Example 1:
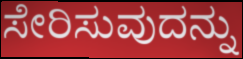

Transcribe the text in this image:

ಸೇರಿಸುವುದನ್ನು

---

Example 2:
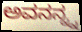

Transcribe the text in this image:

ಅವನನ್ನ್ನ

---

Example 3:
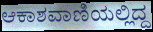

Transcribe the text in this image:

ಆಕಾಶವಾಣಿಯಲ್ಲಿದ್ದ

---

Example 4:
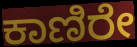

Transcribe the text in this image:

ಕಾಣಿರೇ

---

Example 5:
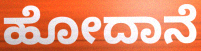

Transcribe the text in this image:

ಹೋದಾನೆ